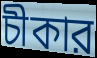
চীকার